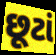
છૂટાં